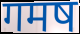
गमष